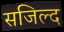
सजिल्द